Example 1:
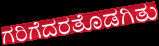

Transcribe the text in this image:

ಗರಿಗೆದರತೊಡಗಿತು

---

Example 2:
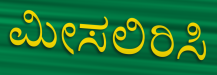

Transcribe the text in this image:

ಮೀಸಲಿರಿಸಿ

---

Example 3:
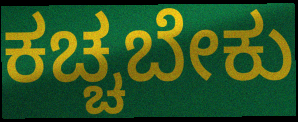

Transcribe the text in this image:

ಕಚ್ಚಬೇಕು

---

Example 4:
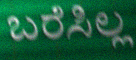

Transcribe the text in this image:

ಬರೆಸಿಲ್ಲ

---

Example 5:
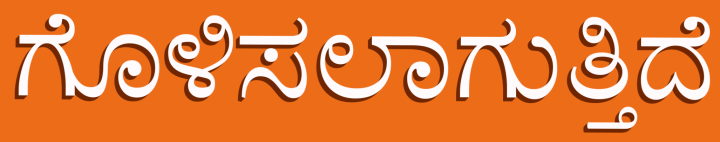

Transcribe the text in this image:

ಗೊಳಿಸಲಾಗುತ್ತಿದೆ